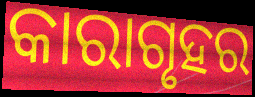
କାରାଗୃହର